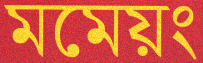
মমেয়ং